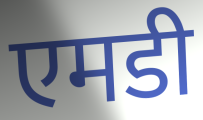
एमडी